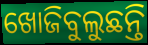
ଖୋଜିବୁଲୁଛନ୍ତି